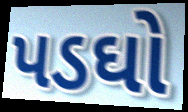
પડઘો